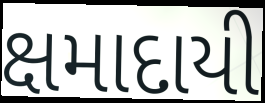
ક્ષમાદાયી